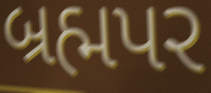
બ્રહ્મપર